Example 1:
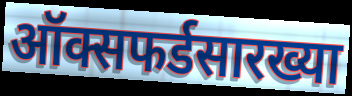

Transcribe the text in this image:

ऑक्सफर्डसारख्या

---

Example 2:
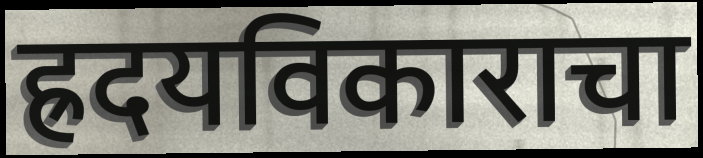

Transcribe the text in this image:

ह्रदयविकाराचा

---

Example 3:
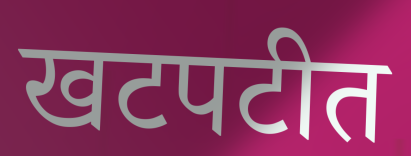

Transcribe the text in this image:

खटपटीत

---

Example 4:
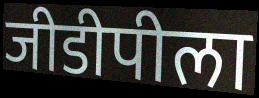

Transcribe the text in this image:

जीडीपीला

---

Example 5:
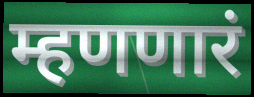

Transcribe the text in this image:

म्हणणारं